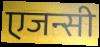
एजन्सी